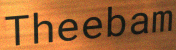
Theebam